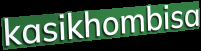
kasikhombisa